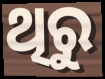
ଥିରୁ